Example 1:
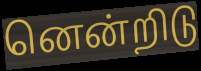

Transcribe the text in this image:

னென்றிடு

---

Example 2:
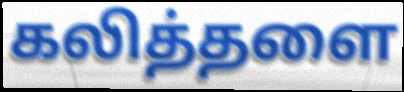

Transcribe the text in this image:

கலித்தளை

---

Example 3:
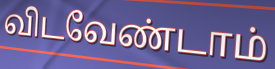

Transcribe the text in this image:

விடவேண்டாம்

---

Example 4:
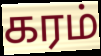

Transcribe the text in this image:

கரம்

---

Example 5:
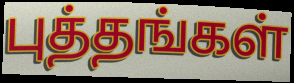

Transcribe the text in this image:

புத்தங்கள்